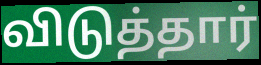
விடுத்தார்